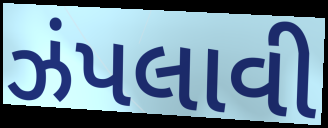
ઝંપલાવી